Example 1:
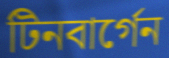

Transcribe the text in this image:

টিনবার্গেন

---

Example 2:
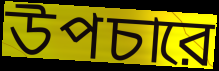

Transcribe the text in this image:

উপচারে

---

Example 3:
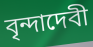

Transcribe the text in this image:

বৃন্দাদেবী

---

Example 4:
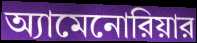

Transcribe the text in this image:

অ্যামেনোরিয়ার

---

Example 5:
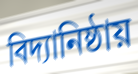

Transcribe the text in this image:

বিদ্যানিষ্ঠায়